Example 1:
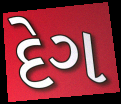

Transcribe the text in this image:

દેગ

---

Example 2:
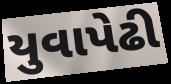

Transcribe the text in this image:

યુવાપેઢી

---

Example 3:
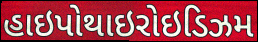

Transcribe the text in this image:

હાઇપોથાઇરોઇડિઝમ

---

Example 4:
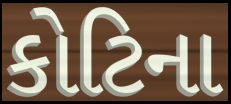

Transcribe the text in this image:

કોટિના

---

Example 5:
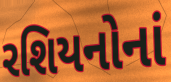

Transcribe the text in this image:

રશિયનોનાં